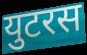
युटरस